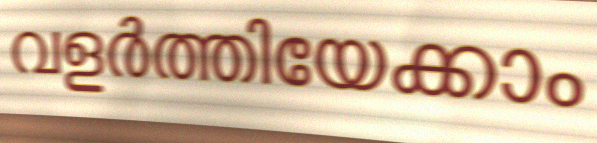
വളർത്തിയേക്കാം